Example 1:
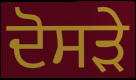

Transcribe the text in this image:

ਦੋਸੜੇ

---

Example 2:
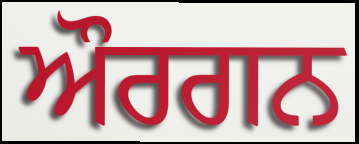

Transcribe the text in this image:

ਔਰਗਨ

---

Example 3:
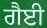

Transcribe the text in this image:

ਗੈਈ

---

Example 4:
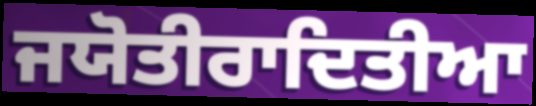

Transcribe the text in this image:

ਜਯੋਤੀਰਾਦਿਤੀਆ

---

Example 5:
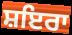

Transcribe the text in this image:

ਸ਼ਇਰਾ